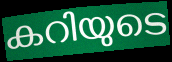
കറിയുടെ